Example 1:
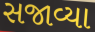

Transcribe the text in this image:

સજાવ્યા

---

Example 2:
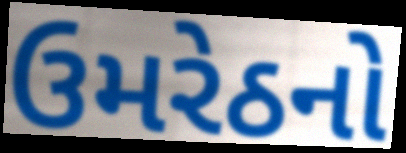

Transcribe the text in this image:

ઉમરેઠનો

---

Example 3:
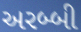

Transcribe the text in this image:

અરબ્બી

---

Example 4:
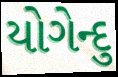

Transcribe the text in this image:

યોગેન્દુ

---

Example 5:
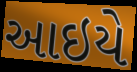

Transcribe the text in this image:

આઇયે